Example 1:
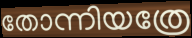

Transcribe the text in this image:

തോന്നിയത്രേ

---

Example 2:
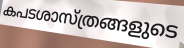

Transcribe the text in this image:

കപടശാസ്ത്രങ്ങളുടെ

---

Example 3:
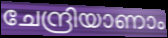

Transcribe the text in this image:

ചേന്ദ്രിയാണാം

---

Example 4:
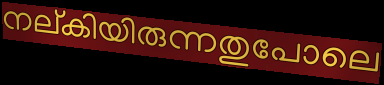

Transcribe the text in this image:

നല്കിയിരുന്നതുപോലെ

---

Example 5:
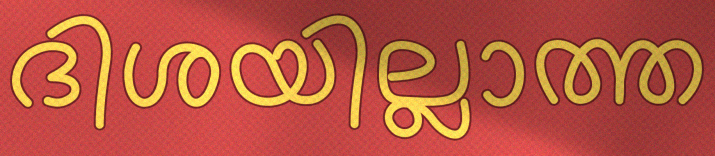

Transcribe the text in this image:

ദിശയില്ലാത്ത